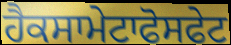
ਹੈਕਸਾਮੇਟਾਫੋਸਫੇਟ